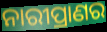
ନାରୀପ୍ରାଣର